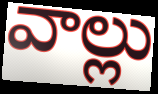
వాల్లు